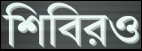
শিবিরও